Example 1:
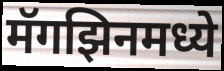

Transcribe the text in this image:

मॅगझिनमध्ये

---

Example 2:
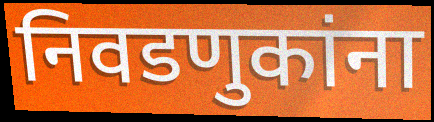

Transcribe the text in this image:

निवडणुकांना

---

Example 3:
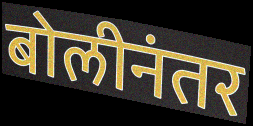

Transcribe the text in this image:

बोलीनंतर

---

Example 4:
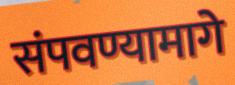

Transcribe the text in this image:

संपवण्यामागे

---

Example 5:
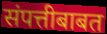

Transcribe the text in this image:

संपत्तीबाबत